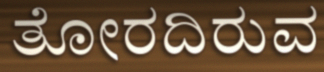
ತೋರದಿರುವ